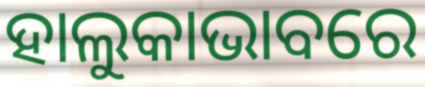
ହାଲୁକାଭାବରେ